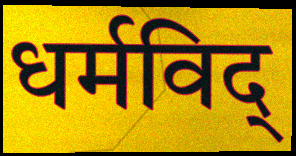
धर्मविद्